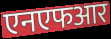
एनएफआर